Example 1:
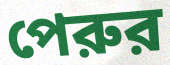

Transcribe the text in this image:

পেরুর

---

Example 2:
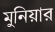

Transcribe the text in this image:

মুনিয়ার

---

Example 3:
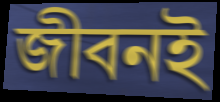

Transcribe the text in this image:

জীবনই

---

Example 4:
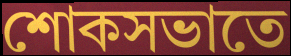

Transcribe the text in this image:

শোকসভাতে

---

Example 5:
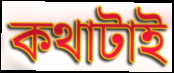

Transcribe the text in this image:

কথাটাই